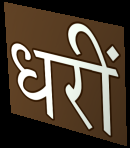
धरीं